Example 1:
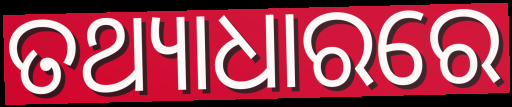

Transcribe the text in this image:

ତଥ୍ୟାଧାରରେ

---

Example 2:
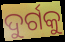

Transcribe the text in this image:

ଦୁର୍ଗକୁ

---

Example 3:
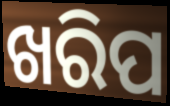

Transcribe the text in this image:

ଖରିପ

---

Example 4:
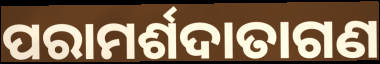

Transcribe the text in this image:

ପରାମର୍ଶଦାତାଗଣ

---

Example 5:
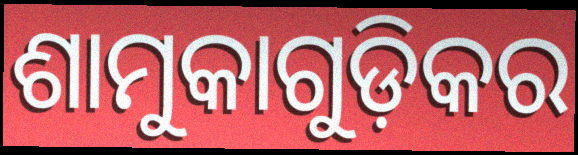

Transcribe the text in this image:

ଶାମୁକାଗୁଡ଼ିକର